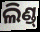
ଲିଣ୍ଡ୍